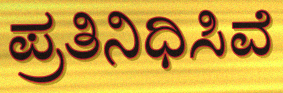
ಪ್ರತಿನಿಧಿಸಿವೆ